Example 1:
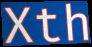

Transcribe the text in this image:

Xth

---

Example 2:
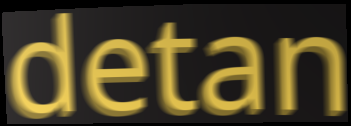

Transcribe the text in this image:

detan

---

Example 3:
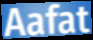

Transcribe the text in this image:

Aafat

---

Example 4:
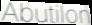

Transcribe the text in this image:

Abutilon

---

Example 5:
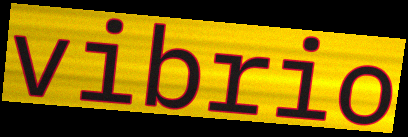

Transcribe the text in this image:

vibrio